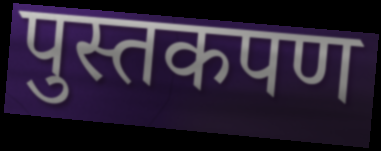
पुस्तकपण